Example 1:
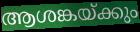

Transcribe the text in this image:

ആശങ്കയ്ക്കും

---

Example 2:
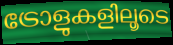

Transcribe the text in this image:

ട്രോളുകളിലൂടെ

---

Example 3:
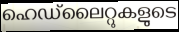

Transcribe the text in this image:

ഹെഡ്‌ലൈറ്റുകളുടെ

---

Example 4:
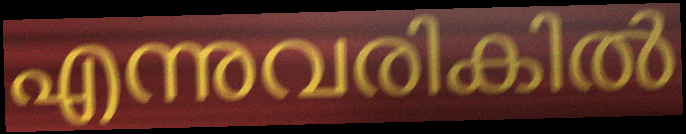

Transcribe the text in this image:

എന്നുവരികിൽ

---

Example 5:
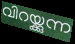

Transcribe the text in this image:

വിറയ്ക്കുന്ന